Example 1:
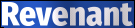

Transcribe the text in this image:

Revenant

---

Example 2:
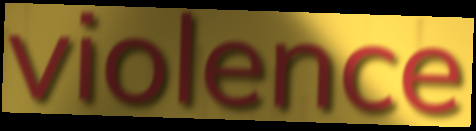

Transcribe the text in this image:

violence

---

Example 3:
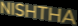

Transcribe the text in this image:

NISHTHA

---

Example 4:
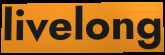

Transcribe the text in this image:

livelong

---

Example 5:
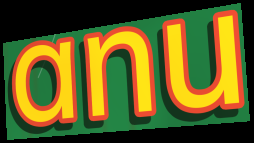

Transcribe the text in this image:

anu